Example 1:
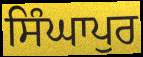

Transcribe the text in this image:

ਸਿੰਘਾਪੁਰ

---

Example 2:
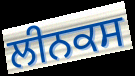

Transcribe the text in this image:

ਲੀਨਕਸ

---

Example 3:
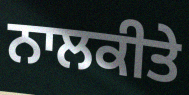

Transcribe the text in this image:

ਨਾਲਕੀਤੇ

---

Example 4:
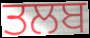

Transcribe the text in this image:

ਤਲਬ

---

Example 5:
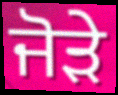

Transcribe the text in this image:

ਜੋੜੇ